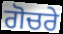
ਗੋਚਰੇ